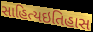
સાહિત્યઇતિહાસ